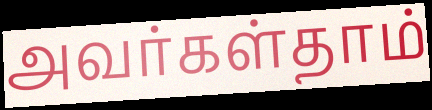
அவர்கள்தாம்